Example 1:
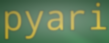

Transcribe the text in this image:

pyari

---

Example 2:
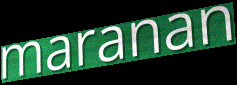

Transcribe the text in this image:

maranan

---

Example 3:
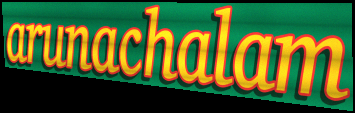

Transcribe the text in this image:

arunachalam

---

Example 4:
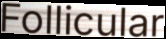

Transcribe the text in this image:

Follicular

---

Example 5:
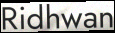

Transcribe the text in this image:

Ridhwan